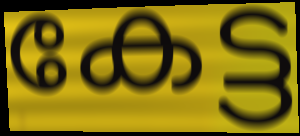
കേട്ട